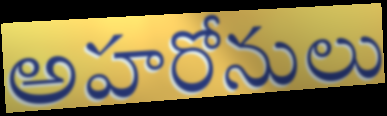
అహరోనులు